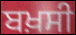
ਬਖ਼ਸੀ